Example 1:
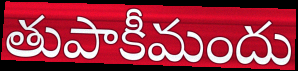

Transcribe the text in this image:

తుపాకీమందు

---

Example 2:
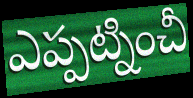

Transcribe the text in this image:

ఎప్పట్నించీ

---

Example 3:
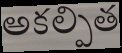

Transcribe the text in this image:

అకల్పిత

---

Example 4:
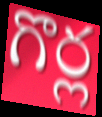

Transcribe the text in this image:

గొర్ల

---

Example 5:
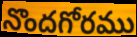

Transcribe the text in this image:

నొందగోరము